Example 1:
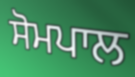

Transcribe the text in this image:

ਸੋਮਪਾਲ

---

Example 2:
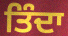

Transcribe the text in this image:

ਤਿੰਦਾ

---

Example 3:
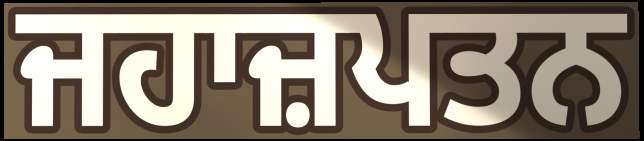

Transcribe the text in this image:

ਜਹਾਜ਼ਪਤਨ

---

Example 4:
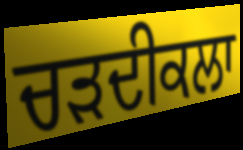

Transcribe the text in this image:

ਚੜਦੀਕਲਾ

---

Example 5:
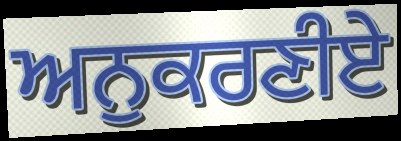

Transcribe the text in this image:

ਅਨੁਕਰਣੀਏ